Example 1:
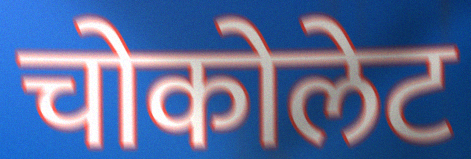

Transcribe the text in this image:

चोकोलेट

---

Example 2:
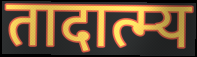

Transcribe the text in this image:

तादात्म्य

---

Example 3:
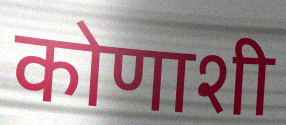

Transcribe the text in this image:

कोणाशी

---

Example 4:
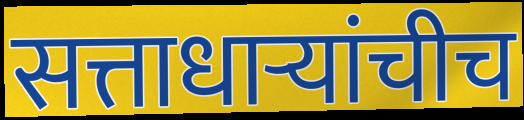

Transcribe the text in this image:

सत्ताधाऱ्यांचीच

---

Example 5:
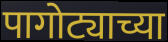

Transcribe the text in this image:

पागोट्याच्या